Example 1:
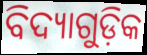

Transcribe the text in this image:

ବିଦ୍ୟାଗୁଡ଼ିକ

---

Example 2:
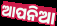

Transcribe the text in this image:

ଆପନିଆ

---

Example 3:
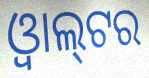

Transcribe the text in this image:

ଓ୍ୱାଲ୍‍ଟର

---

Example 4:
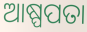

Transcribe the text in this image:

ଆଷ୍ପପତା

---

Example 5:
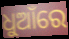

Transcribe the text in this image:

ଧୁଆଁରେ